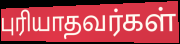
புரியாதவர்கள்